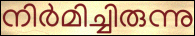
നിർമിച്ചിരുന്നു